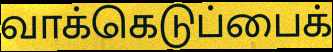
வாக்கெடுப்பைக்